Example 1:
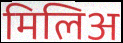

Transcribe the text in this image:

मिलिअ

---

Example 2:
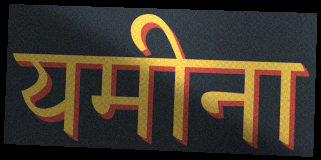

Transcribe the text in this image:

यमीना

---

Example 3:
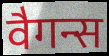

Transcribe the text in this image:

वैगन्स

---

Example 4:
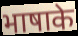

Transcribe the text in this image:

भाषाके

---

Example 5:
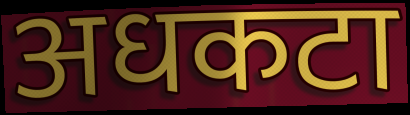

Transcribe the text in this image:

अधकटा